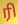
ரி